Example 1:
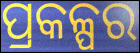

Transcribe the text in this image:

ପ୍ରକଳ୍ପର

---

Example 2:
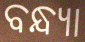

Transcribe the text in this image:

ବନ୍ଧ୍ଯା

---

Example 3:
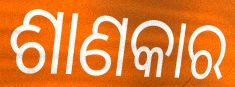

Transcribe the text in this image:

ଶାଣକାର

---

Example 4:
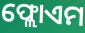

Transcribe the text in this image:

ଫ୍ଲୋଏମ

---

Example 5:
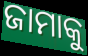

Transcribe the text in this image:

ଜାମାକୁ